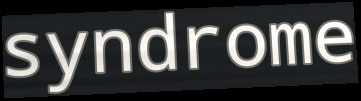
syndrome